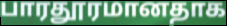
பாரதூரமானதாக